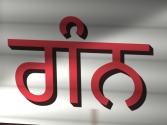
ਗੰਨ